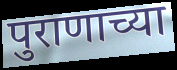
पुराणाच्या